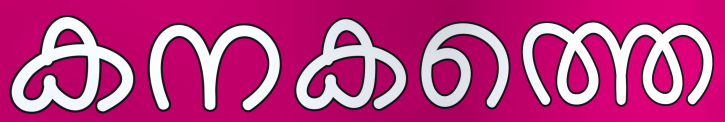
കനകത്തെ